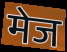
मेज